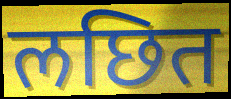
लछित